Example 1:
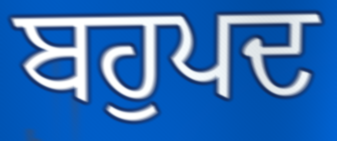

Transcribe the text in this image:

ਬਹੁਪਦ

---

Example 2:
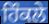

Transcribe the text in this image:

ਹਿੰਕਲੇ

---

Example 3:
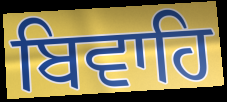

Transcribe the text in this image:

ਬਿਵਾਹਿ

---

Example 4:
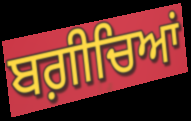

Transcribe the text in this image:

ਬਗ਼ੀਚਿਆਂ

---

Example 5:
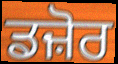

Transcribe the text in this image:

ਡਜ਼ੋਰ